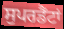
ਸੁਪਰਡੈਂਟਾਂ